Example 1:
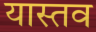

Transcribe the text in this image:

यास्तव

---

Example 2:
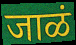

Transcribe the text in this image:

जाळं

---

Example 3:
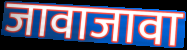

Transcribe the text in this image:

जावाजावा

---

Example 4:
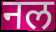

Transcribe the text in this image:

नल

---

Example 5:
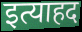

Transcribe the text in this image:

इत्याहद